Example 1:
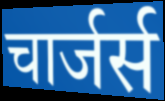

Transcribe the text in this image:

चार्जर्स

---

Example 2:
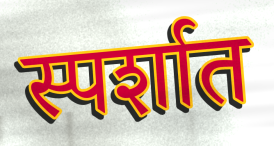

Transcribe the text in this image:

स्पर्शात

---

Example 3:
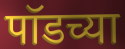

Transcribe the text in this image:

पॉडच्या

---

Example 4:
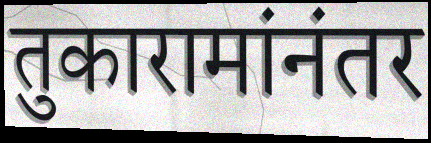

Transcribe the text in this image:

तुकारामांनंतर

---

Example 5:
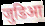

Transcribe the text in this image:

जुडिआ